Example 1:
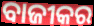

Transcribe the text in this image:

ବାଜୀକର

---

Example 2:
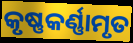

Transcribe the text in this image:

କୃଷ୍ଣକର୍ଣ୍ଣାମୃତ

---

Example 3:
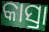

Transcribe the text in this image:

କାସ୍ରା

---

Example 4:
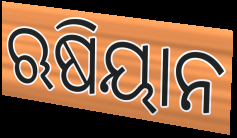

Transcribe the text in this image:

ଋଷିୟାନ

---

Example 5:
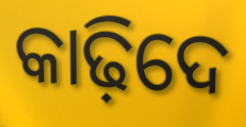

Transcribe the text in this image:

କାଢ଼ିଦେ